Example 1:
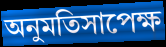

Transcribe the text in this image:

অনুমতিসাপেক্ষ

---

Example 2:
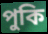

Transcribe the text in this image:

পুকি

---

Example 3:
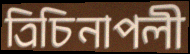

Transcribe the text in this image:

ত্রিচিনাপলী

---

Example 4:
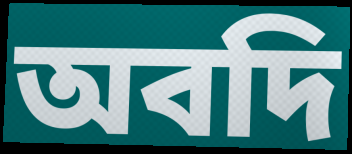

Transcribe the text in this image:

অবদি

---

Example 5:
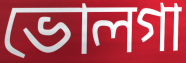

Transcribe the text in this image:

ভোলগা